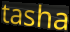
tasha